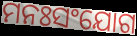
ମନଃସଂଯୋଗ